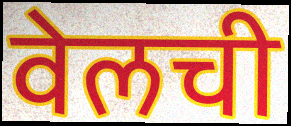
वेलची